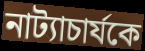
নাট্যাচার্যকে